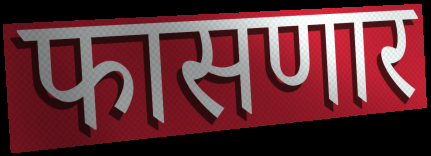
फासणार